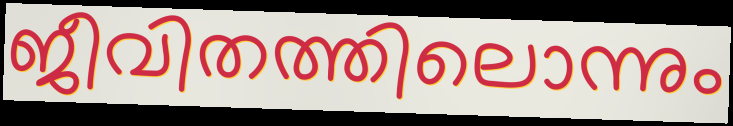
ജീവിതത്തിലൊന്നും